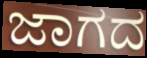
ಜಾಗದ